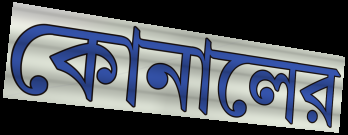
কোনালের